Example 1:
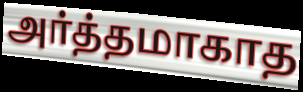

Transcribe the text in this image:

அர்த்தமாகாத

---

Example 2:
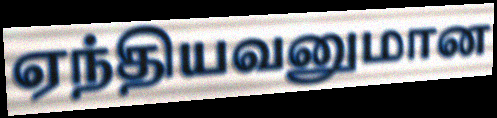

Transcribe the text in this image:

ஏந்தியவனுமான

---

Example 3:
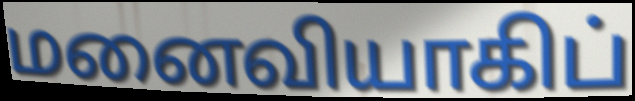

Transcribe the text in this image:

மனைவியாகிப்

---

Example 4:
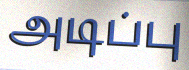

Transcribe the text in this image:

அடிப்பு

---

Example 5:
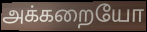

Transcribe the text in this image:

அக்கறையோ